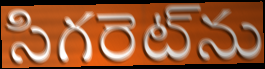
సిగరెట్‌ను